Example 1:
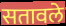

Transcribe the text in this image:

सतावले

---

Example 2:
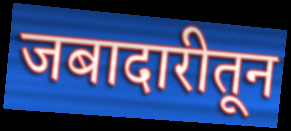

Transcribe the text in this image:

जबादारीतून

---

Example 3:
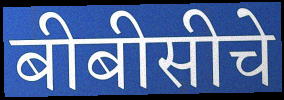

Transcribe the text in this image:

बीबीसीचे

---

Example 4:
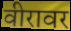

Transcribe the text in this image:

वीरावर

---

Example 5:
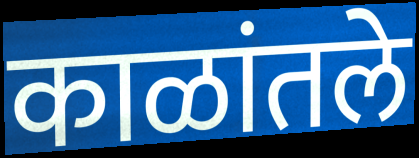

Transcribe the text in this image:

काळांतले